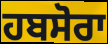
ਹਬਸੋਰਾ